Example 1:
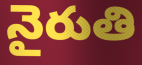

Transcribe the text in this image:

నైరుతి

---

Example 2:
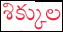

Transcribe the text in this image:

శిక్కుల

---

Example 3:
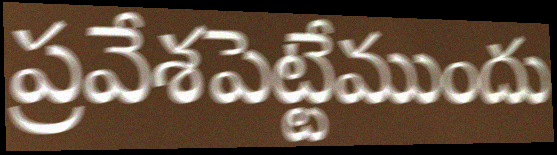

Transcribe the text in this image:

ప్రవేశపెట్టేముందు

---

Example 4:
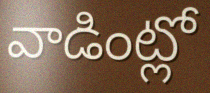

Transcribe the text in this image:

వాడింట్లో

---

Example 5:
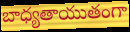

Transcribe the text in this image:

బాధ్యతాయుతంగా